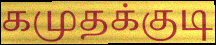
கமுதக்குடி